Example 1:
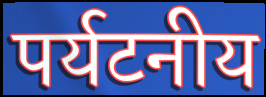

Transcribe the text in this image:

पर्यटनीय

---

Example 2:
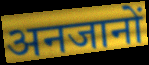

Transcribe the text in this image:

अनजानों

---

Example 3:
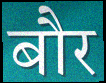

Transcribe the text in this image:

बौर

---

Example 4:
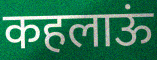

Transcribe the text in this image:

कहलाऊं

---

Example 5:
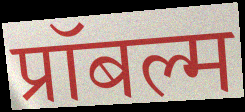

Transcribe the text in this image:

प्रॉबल्म